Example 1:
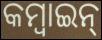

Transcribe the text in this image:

କମ୍ବାଇନ୍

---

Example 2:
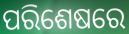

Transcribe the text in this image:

ପରିଶେଷରେ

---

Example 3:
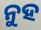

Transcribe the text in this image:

ନୁହ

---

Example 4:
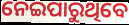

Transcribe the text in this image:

ନେଇପାରୁଥିବେ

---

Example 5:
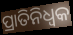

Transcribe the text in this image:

ପ୍ରାତିନିଧ୍ଵକ